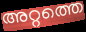
അറ്റത്തെ